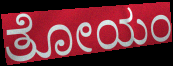
ತೋಯಂ